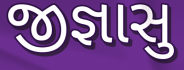
જીજ્ઞાસુ